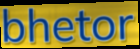
bhetor